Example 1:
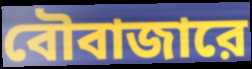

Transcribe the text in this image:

বৌবাজারে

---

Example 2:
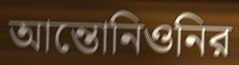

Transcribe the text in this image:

আন্তোনিওনির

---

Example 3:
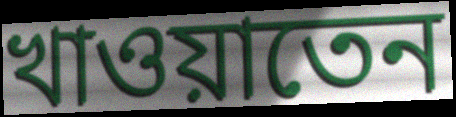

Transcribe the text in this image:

খাওয়াতেন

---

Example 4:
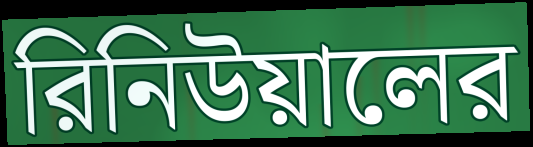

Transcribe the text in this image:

রিনিউয়ালের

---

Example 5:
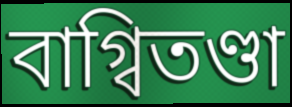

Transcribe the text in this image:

বাগ্বিতণ্ডা